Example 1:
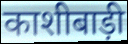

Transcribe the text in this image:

काशीबाड़ी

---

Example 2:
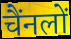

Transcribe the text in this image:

चैंनलों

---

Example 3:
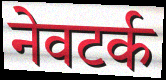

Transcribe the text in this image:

नेवटर्क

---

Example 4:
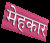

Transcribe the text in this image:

मेहकार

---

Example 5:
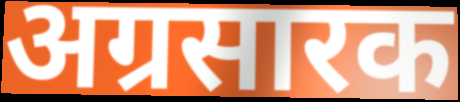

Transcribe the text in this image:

अग्रसारक